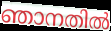
ഞാനതിൽ